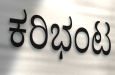
ಕರಿಭಂಟ